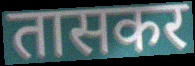
तासकर